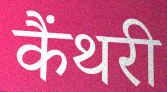
कैंथरी